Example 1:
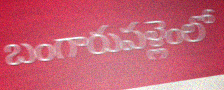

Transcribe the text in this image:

బంగారుపళ్లెంలో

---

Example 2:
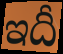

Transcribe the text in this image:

ఇదీ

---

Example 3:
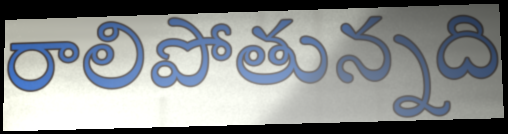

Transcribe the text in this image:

రాలిపోతున్నది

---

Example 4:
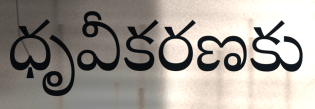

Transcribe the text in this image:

ధృవీకరణకు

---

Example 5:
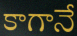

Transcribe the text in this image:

కాగానే